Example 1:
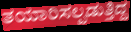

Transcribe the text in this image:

ತಯಾರಿಸಲ್ಪಡುತ್ತಿದ್ದ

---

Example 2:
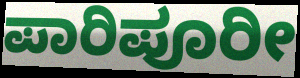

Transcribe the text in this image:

ಪಾರಿಪೂರೀ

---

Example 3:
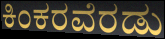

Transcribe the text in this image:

ಕಿಂಕರವೆರಡು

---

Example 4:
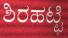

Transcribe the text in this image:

ಶಿರಹಟ್ಟಿ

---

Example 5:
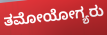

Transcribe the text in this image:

ತಮೋಯೋಗ್ಯರು